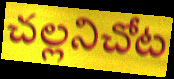
చల్లనిచోట